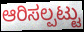
ಆರಿಸಲ್ಪಟ್ಟು